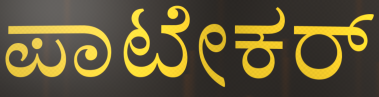
ಪಾಟೇಕರ್